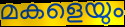
മകളെയും